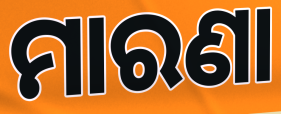
ମାରଣା